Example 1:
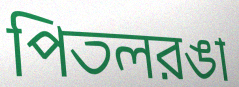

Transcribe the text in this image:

পিতলরঙা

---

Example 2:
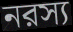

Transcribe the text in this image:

নরস্য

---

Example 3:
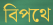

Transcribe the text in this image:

বিপথে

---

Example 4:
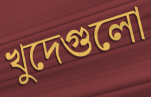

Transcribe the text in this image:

খুদেগুলো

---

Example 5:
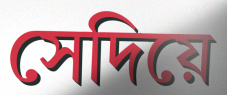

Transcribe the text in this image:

সেদিয়ে